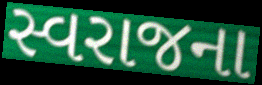
સ્વરાજના